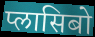
प्लासिबो